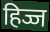
हिज्ज